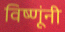
विष्णूंनी